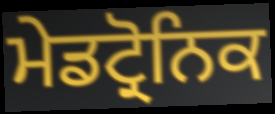
ਮੇਡਟ੍ਰੋਨਿਕ